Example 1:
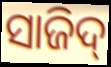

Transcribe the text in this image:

ସାଜିଦ୍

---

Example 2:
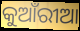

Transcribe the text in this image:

କୁଆଁରୀଆ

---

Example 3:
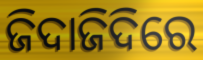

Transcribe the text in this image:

ଜିଦାଜିଦିରେ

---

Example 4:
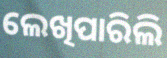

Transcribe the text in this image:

ଲେଖିପାରିଲି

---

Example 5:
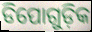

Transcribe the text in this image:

ଡିପୋଗୁଡ଼ିକ